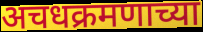
अचधक्रमणाच्या